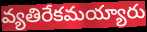
వ్యతిరేకమయ్యారు